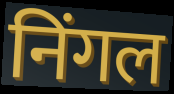
निंगल